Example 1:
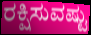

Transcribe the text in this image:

ರಕ್ಷಿಸುವಷ್ಟು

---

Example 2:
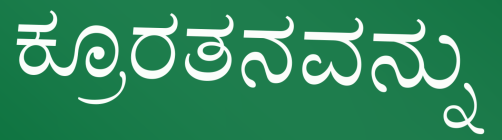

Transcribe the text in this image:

ಕ್ರೂರತನವನ್ನು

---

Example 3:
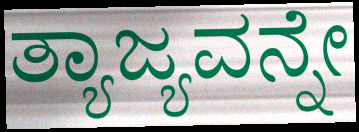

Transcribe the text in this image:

ತ್ಯಾಜ್ಯವನ್ನೇ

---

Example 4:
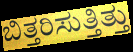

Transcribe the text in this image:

ಬಿತ್ತರಿಸುತ್ತಿತ್ತು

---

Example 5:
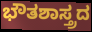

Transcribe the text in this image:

ಭೌತಶಾಸ್ತ್ರದ